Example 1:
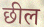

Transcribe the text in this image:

छील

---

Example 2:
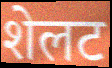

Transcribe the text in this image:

शेलट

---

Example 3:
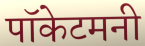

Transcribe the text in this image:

पॉकेटमनी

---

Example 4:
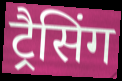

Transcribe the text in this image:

ट्रैसिंग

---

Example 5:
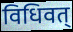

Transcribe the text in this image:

विधिवत्